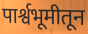
पार्श्वभूमीतून